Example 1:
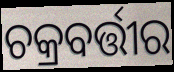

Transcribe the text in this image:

ଚକ୍ରବର୍ତ୍ତୀର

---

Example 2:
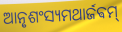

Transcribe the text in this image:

ଆନୃଶଂସ୍ୟମଥାର୍ଜଵମ୍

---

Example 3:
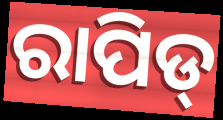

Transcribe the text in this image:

ରାପିଡ୍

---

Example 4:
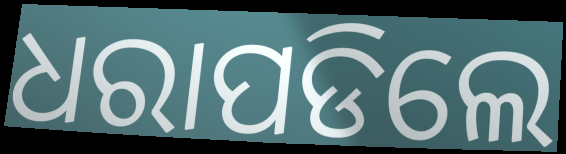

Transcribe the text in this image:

ଧରାପଡିଲେ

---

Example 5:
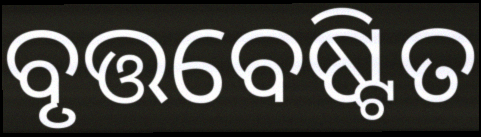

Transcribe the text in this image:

ବୃତ୍ତବେଷ୍ଟିତ